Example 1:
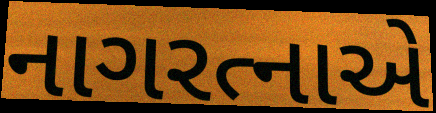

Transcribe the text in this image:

નાગરત્નાએ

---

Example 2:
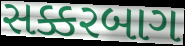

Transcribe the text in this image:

સક્કરબાગ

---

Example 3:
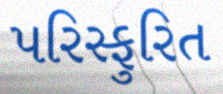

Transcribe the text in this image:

પરિસ્ફુરિત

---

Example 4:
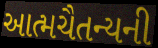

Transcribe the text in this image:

આત્મચૈતન્યની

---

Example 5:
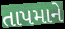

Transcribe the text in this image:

તાપમાને